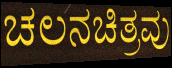
ಚಲನಚಿತ್ರವು